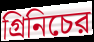
গ্রিনিচের